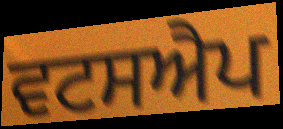
ਵਟਸਐਪ